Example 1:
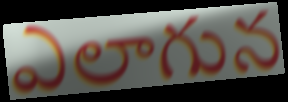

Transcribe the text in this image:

ఎలాగున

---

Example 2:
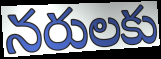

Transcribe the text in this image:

నరులకు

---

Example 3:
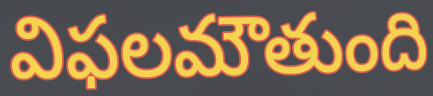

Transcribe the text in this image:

విఫలమౌతుంది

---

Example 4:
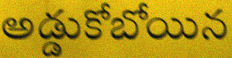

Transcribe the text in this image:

అడ్డుకోబోయిన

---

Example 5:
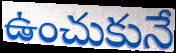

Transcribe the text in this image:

ఉంచుకునే